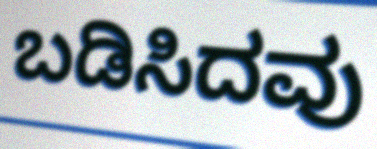
ಬಡಿಸಿದವು